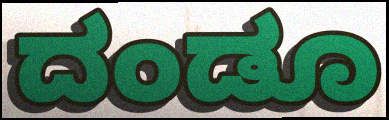
ದಂಡೂ